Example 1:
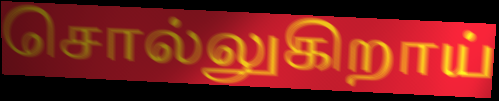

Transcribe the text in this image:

சொல்லுகிறாய்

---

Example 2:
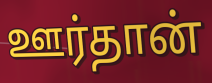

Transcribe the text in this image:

ஊர்தான்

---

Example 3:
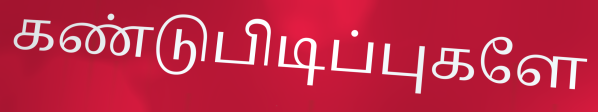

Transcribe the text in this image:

கண்டுபிடிப்புகளே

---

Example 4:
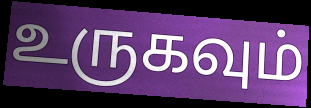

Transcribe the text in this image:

உருகவும்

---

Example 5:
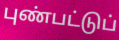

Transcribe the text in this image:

புண்பட்டுப்